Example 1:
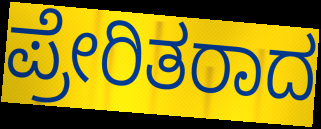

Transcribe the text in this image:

ಪ್ರೇರಿತರಾದ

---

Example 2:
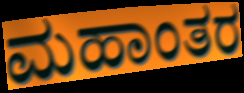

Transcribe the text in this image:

ಮಹಾಂತರ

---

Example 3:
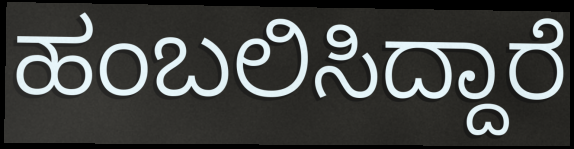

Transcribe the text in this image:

ಹಂಬಲಿಸಿದ್ದಾರೆ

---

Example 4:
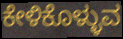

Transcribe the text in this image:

ಕೇಳಿಕೊಳ್ಳುವ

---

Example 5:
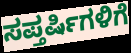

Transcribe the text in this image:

ಸಪ್ತರ್ಷಿಗಳಿಗೆ